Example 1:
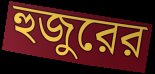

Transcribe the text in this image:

হুজুরের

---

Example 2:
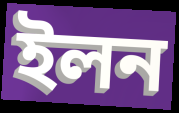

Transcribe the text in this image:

ইলন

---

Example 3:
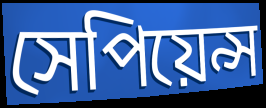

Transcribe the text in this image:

সেপিয়েন্স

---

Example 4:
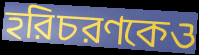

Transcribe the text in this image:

হরিচরণকেও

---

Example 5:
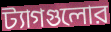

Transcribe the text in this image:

ট্যাগগুলোর